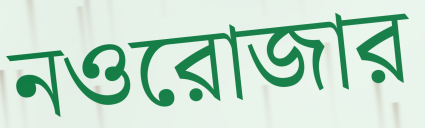
নওরোজার